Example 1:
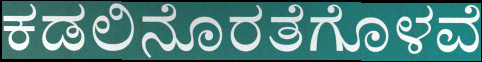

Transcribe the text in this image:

ಕಡಲಿನೊರತೆಗೊಳವೆ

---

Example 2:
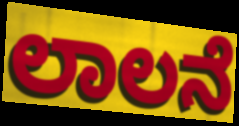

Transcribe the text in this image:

ಲಾಲನೆ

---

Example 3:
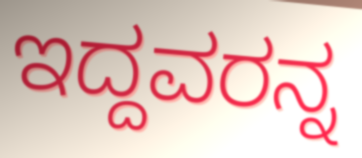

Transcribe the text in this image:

ಇದ್ದವರನ್ನ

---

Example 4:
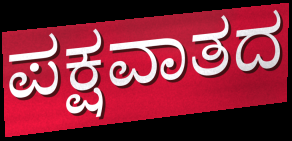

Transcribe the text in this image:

ಪಕ್ಷವಾತದ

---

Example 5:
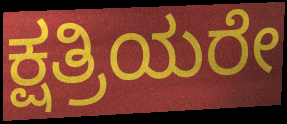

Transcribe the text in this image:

ಕ್ಷತ್ರಿಯರೇ